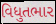
વિધુતભાર